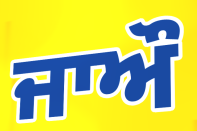
ਜਾਔ